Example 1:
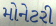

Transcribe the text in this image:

મોનેટરી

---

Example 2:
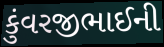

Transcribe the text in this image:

કુંવરજીભાઈની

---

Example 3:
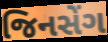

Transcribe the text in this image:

જિનસેંગ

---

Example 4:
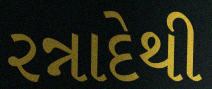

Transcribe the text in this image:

રન્નાદેથી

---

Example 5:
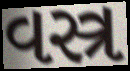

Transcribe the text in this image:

વસ્ત્ર